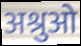
अश्रुओ